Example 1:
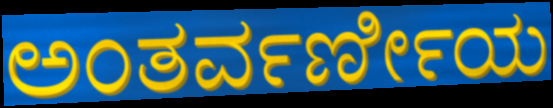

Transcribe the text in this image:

ಅಂತರ್ವರ್ಣೀಯ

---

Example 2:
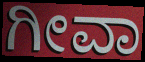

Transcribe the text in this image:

ಗೀವಾ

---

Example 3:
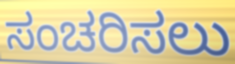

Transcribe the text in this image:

ಸಂಚರಿಸಲು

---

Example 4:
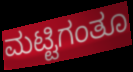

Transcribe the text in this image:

ಮಟ್ಟಿಗಂತೂ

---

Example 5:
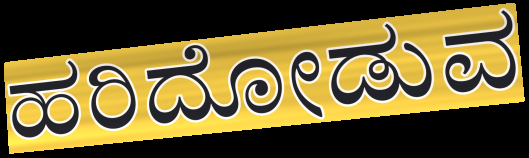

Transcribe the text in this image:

ಹರಿದೋಡುವ